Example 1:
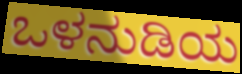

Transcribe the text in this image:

ಒಳನುಡಿಯ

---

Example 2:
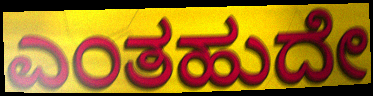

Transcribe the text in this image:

ಎಂತಹುದೇ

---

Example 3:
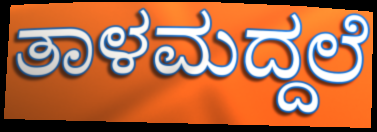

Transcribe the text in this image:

ತಾಳಮದ್ದಲೆ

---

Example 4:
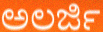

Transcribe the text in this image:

ಅಲರ್ಜಿ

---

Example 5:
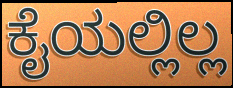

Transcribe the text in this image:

ಕೈಯಲ್ಲಿಲ್ಲ